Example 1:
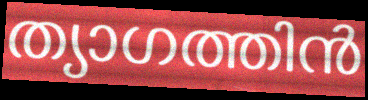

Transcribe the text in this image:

ത്യാഗത്തിൻ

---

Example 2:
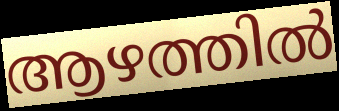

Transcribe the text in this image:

ആഴത്തിൽ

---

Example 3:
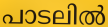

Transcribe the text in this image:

പാടലിൽ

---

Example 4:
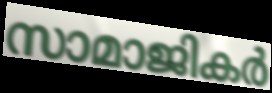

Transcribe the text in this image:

സാമാജികർ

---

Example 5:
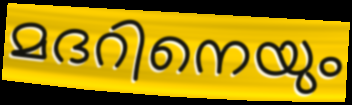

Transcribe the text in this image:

മദറിനെയും